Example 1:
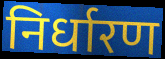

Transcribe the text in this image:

निर्धारण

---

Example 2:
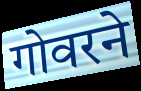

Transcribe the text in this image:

गोवरने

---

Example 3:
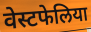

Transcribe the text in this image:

वेस्टफेलिया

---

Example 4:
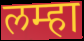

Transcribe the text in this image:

लम्हा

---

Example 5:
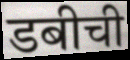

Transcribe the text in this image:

डबीची